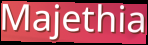
Majethia